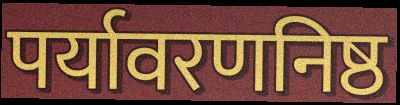
पर्यावरणनिष्ठ